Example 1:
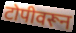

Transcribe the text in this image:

टोपीवरून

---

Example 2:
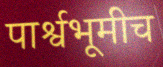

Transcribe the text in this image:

पार्श्वभूमीच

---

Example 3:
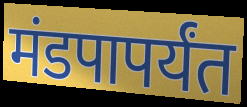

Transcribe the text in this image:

मंडपापर्यंत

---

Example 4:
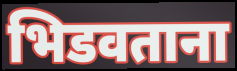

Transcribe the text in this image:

भिडवताना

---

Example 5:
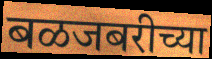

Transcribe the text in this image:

बळजबरीच्या